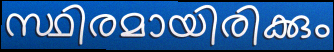
സ്ഥിരമായിരിക്കും